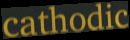
cathodic